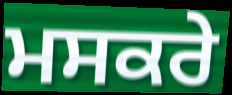
ਮਸਕਰੇ